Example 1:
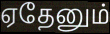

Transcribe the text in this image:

ஏதேனும்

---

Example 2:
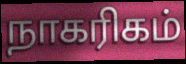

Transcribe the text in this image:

நாகரிகம்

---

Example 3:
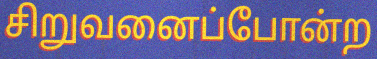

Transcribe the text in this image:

சிறுவனைப்போன்ற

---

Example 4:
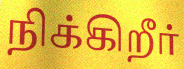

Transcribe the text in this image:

நிக்கிறீர்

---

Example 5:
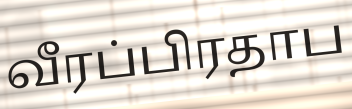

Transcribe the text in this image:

வீரப்பிரதாப